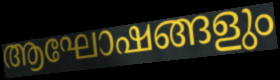
ആഘോഷങ്ങളും